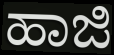
ಹಾಜಿ